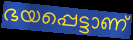
ഭയപ്പെട്ടാണ്